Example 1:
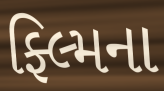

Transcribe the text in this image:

ફ્લ્મિના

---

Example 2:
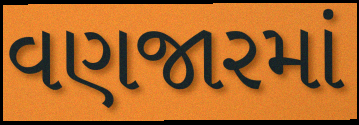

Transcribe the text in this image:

વણજારમાં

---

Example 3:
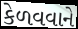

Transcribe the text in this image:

કેળવવાને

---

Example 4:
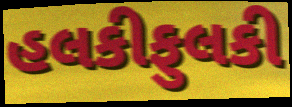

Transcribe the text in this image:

હલકીફુલકી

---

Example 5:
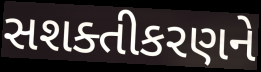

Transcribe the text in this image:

સશક્તીકરણને